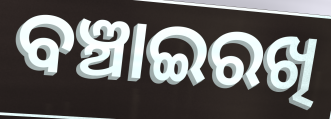
ବଞ୍ଚାଇରଖି